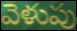
వెళుపు